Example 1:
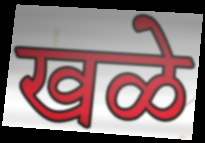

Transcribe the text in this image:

खळे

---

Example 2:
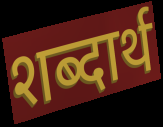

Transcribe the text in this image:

शब्दार्थ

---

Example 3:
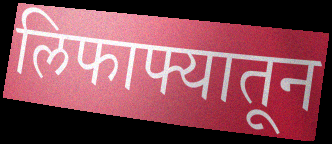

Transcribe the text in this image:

लिफाफ्यातून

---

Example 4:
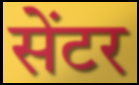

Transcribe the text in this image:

सेंटर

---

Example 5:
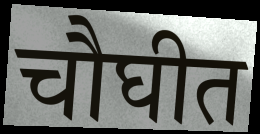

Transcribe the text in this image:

चौघीत